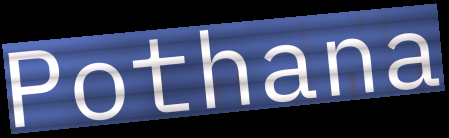
Pothana